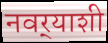
नवर्याशी